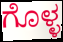
ಗೊಳ್ಳ